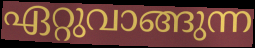
ഏറ്റുവാങ്ങുന്ന